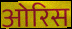
ओरिस